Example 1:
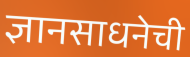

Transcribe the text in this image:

ज्ञानसाधनेची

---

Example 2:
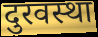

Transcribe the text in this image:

दुरवस्था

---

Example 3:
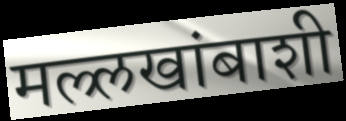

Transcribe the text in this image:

मल्लखांबाशी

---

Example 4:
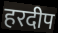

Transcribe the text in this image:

हरदीप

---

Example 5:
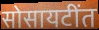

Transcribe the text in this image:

सोसायटींत